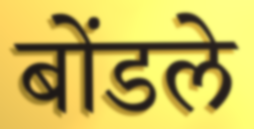
बोंडले